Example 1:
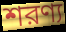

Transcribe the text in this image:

শরণ্য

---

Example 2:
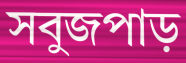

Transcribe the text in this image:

সবুজপাড়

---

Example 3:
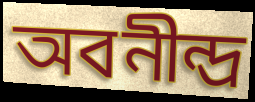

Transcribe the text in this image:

অবনীন্দ্র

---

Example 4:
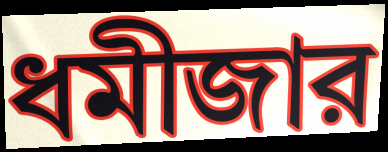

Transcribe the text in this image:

ধমীজার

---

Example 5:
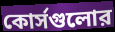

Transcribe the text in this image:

কোর্সগুলোর